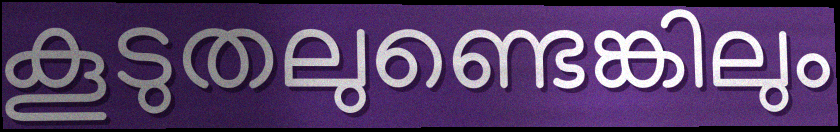
കൂടുതലുണ്ടെങ്കിലും